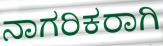
ನಾಗರಿಕರಾಗಿ